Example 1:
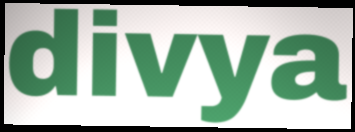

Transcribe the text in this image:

divya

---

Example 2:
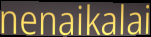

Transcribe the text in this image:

nenaikalai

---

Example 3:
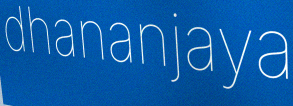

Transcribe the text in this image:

dhananjaya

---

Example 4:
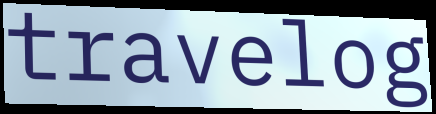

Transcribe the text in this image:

travelog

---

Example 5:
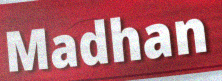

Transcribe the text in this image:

Madhan